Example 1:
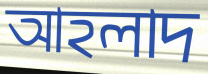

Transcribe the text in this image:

আহলাদ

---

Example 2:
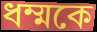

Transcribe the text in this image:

ধম্মকে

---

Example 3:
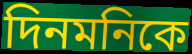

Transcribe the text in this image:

দিনমনিকে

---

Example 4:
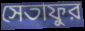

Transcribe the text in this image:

সেতাফুর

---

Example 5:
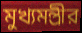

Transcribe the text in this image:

মুখ্যমন্ত্রীর